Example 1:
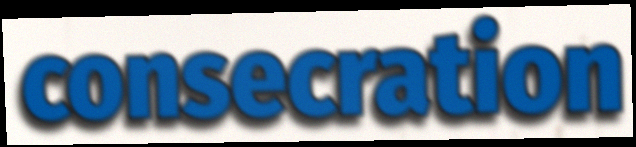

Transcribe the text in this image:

consecration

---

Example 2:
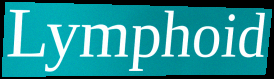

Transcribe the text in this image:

Lymphoid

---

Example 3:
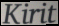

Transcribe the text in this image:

Kirit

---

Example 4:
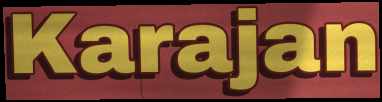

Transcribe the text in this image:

Karajan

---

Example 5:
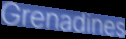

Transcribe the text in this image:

Grenadines